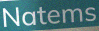
Natems